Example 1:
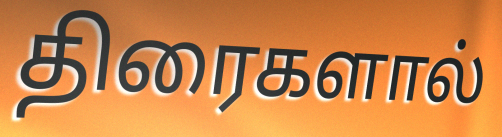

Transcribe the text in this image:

திரைகளால்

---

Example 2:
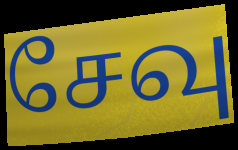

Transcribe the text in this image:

சேவு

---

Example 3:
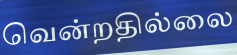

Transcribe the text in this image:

வென்றதில்லை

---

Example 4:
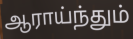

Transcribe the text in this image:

ஆராய்ந்தும்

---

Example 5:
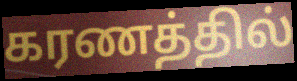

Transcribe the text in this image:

கரணத்தில்